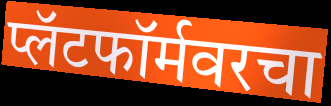
प्लॅटफॉर्मवरचा